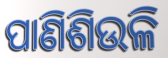
ପାଣିଶିଉଳି